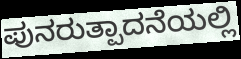
ಪುನರುತ್ಪಾದನೆಯಲ್ಲಿ